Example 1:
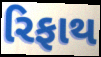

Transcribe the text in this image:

રિફાથ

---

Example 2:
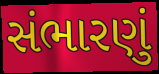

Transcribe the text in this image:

સંભારણું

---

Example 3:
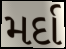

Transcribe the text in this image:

મર્દા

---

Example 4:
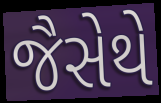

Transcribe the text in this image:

જૈસેથે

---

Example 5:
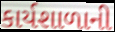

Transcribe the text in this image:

કાર્યશાળાની